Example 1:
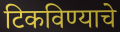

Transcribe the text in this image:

टिकविण्याचे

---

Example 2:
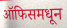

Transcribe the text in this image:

ऑफिसमधून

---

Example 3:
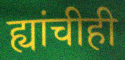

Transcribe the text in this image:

ह्यांचीही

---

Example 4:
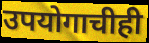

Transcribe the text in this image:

उपयोगाचीही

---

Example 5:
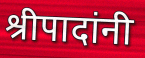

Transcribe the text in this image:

श्रीपादांनी